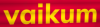
vaikum